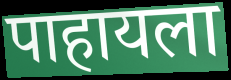
पाहायला